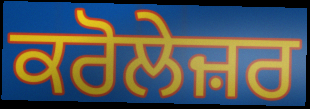
ਕਰੋਲੇਜ਼ਰ